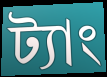
ট্যাং